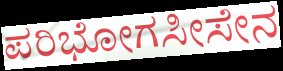
ಪರಿಭೋಗಸೀಸೇನ